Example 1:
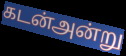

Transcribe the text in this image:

கடன்அன்று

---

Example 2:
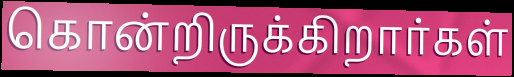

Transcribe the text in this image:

கொன்றிருக்கிறார்கள்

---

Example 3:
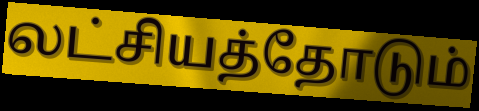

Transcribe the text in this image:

லட்சியத்தோடும்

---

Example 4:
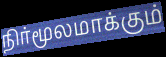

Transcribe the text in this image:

நிர்மூலமாக்கும்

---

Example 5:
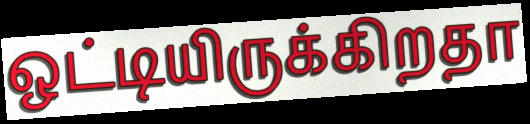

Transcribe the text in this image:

ஒட்டியிருக்கிறதா